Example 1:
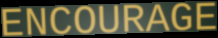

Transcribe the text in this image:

ENCOURAGE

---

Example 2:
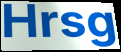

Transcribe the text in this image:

Hrsg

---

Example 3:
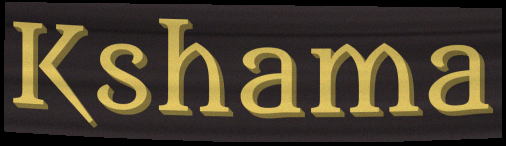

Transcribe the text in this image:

Kshama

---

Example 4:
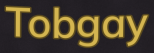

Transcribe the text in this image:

Tobgay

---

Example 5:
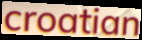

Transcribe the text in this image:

croatian